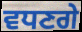
ਵਧਣਗੇ